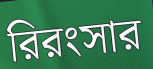
রিরংসার